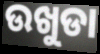
ଉଖୁଡା